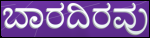
ಬಾರದಿರವು